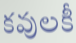
కవులకీ